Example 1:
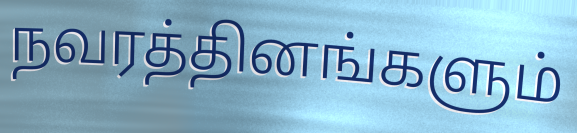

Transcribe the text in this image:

நவரத்தினங்களும்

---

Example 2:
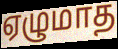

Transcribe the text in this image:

ஏழுமாத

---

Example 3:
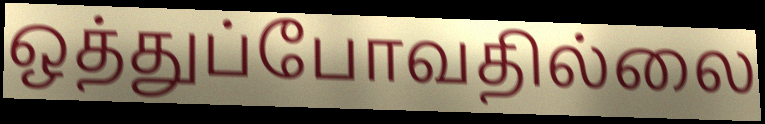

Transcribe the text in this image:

ஒத்துப்போவதில்லை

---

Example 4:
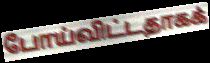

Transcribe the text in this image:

போய்விட்டதாகக்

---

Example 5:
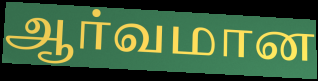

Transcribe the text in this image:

ஆர்வமான